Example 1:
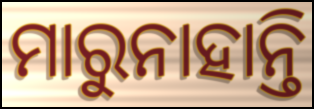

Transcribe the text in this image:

ମାରୁନାହାନ୍ତି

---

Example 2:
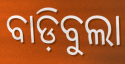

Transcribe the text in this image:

ବାଡ଼ିବୁଲା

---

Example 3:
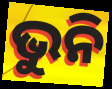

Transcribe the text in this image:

ଭୁନି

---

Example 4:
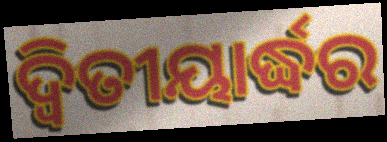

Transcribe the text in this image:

ଦ୍ୱିତୀୟାର୍ଦ୍ଧର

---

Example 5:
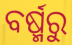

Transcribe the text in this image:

ବର୍ଷ୍ମରୁ